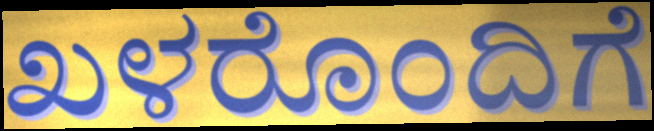
ಖಳರೊಂದಿಗೆ